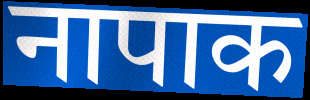
नापाक